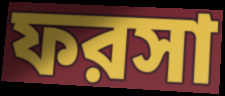
ফরসা